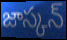
జాస్కన్